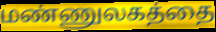
மண்ணுலகத்தை